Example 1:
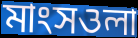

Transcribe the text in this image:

মাংসওলা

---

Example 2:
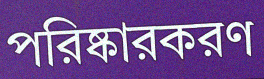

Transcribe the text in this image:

পরিষ্কারকরণ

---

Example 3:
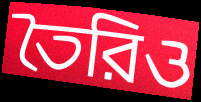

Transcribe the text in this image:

তৈরিও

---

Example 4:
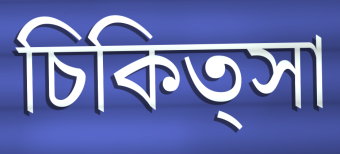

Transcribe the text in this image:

চিকিত্সা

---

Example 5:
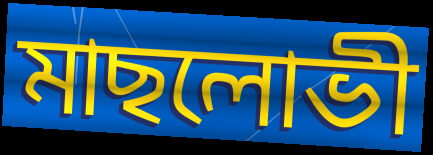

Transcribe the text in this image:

মাছলোভী